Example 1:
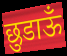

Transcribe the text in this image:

छुडाऊँ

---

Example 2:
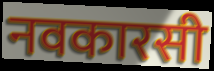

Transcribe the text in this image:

नवकारसी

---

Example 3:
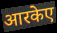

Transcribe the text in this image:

आरकेए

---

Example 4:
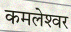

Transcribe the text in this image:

कमलेश्‍वर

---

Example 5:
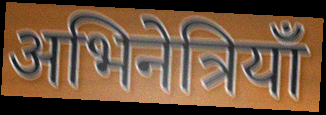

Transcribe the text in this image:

अभिनेत्रियाँ